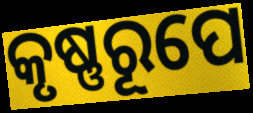
କୃଷ୍ଣରୂପେ